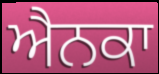
ਐਨਕਾ